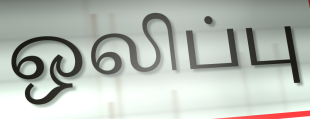
ஒலிப்பு